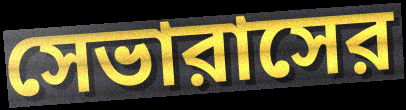
সেভারাসের